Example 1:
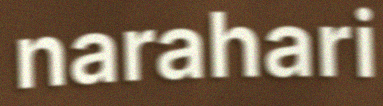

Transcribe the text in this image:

narahari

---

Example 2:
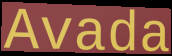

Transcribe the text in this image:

Avada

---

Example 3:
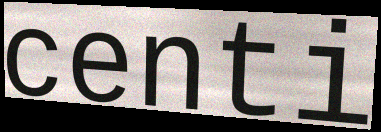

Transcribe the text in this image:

centi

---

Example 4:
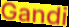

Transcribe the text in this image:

Gandi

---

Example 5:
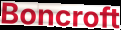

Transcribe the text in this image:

Boncroft